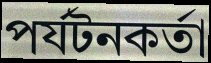
পর্যটনকর্তা